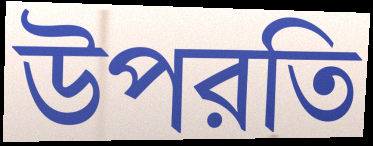
উপরতি